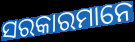
ସରକାରମାନେ